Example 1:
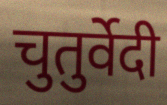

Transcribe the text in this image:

चुतुर्वेदी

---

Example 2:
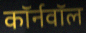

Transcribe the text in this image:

कॉर्नवॉल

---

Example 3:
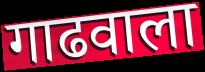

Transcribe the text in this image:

गाढवाला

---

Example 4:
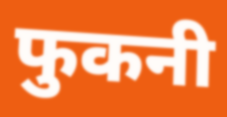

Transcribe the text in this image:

फुकनी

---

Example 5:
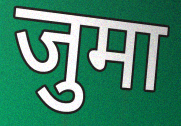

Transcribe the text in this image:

जुमा